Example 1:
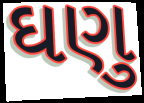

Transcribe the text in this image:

ઘણુ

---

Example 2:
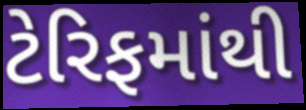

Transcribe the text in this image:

ટેરિફમાંથી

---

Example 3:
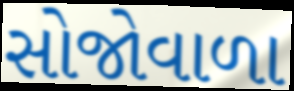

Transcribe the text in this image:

સોજોવાળા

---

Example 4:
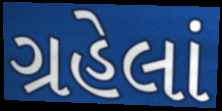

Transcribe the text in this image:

ગ્રહેલાં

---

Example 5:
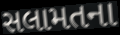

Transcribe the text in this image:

સલામતના